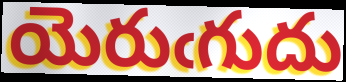
యెరుఁగుదు